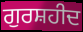
ਗੁਰਸ਼ਹੀਦ